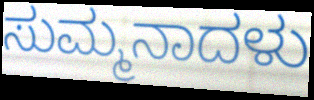
ಸುಮ್ಮನಾದಳು